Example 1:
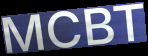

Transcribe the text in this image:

MCBT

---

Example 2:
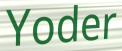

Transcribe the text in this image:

Yoder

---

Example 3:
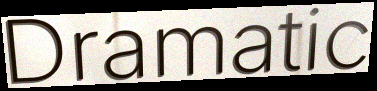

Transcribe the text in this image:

Dramatic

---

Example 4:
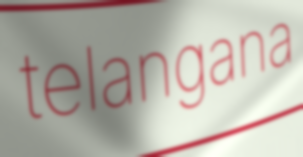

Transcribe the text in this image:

telangana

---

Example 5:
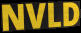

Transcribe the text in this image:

NVLD